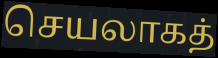
செயலாகத்